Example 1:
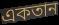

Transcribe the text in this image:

একতান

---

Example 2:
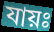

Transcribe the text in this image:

যায়ঃ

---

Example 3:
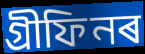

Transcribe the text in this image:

গ্ৰীফিনৰ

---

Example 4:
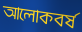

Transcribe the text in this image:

আলোকবৰ্ষ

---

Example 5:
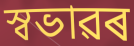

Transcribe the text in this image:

স্বভাৱৰ